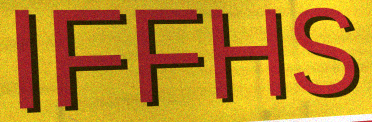
IFFHS